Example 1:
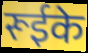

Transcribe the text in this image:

रूईके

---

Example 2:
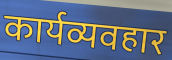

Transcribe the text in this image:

कार्यव्यवहार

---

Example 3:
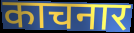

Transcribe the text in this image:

काचनार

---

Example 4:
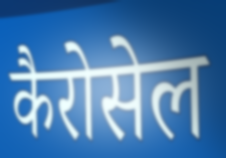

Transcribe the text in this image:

कैरोसेल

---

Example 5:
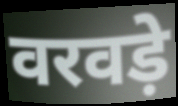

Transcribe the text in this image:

वरवड़े